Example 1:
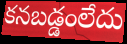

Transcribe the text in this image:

కనబడ్డంలేదు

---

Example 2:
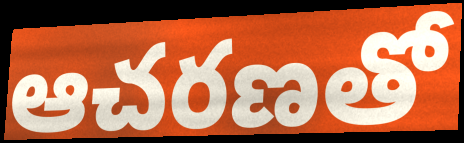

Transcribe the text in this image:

ఆచరణతో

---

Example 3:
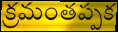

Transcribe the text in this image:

క్రమంతప్పక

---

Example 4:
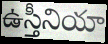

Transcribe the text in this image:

ఉస్తీనియా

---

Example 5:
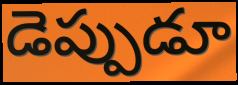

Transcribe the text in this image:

డెప్పుడూ